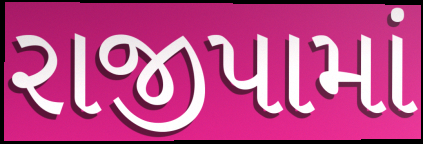
રાજીપામાં